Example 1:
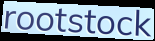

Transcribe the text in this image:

rootstock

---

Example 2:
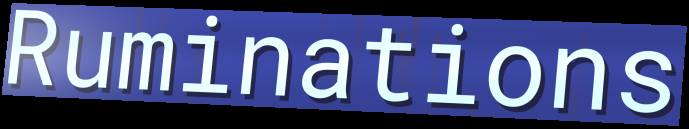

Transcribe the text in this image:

Ruminations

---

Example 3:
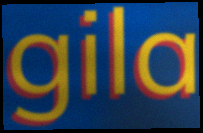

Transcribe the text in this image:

gila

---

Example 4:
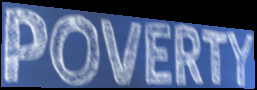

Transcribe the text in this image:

POVERTY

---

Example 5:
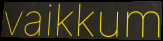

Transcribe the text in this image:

vaikkum